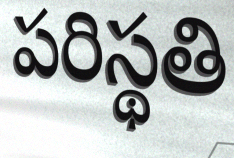
పరిస్థతి